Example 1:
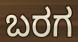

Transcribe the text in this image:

ಬರಗ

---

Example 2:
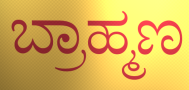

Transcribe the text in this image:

ಬ್ರಾಹ್ಮಣ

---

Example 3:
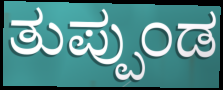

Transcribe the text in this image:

ತುಪ್ಪುಂಡ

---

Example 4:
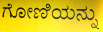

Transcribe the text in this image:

ಗೋಣಿಯನ್ನು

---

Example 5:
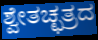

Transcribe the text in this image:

ಶ್ವೇತಚ್ಛತ್ರದ